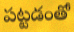
పట్టడంతో